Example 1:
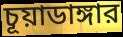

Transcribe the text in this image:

চূয়াডাঙ্গার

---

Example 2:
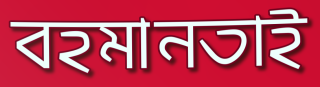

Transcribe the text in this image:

বহমানতাই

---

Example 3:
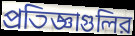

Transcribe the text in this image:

প্রতিজ্ঞাগুলির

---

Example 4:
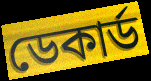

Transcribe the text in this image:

ডেকার্ড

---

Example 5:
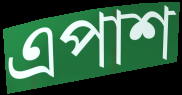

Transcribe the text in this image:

এপাশ